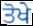
ਤੋਖੇ